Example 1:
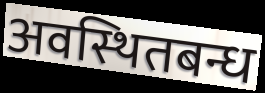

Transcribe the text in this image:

अवस्थितबन्ध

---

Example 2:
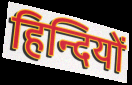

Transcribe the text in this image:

हिन्दियों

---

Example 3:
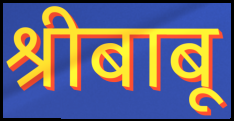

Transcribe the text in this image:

श्रीबाबू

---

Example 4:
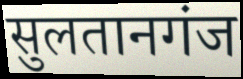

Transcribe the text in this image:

सुलतानगंज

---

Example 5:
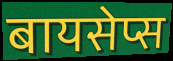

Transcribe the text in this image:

बायसेप्स